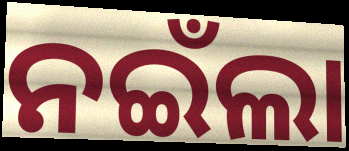
ନଇଁଲା